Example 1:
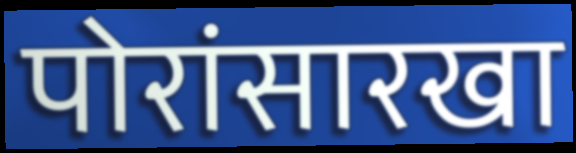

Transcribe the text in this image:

पोरांसारखा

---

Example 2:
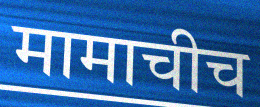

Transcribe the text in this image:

मामाचीच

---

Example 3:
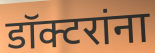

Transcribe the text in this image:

डॉक्टरांना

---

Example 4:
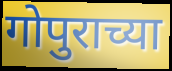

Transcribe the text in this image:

गोपुराच्या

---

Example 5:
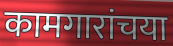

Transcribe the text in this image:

कामगारांचया